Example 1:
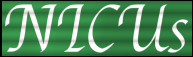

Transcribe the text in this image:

NICUs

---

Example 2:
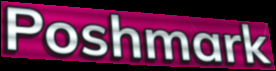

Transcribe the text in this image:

Poshmark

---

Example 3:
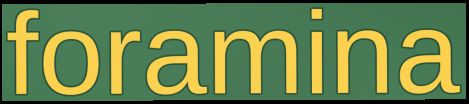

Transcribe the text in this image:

foramina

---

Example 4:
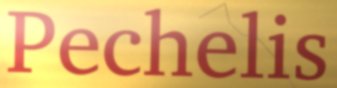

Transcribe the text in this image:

Pechelis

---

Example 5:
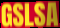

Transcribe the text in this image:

GSLSA